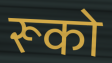
रूको